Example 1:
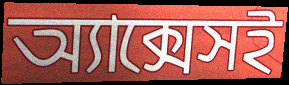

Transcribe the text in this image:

অ্যাক্সেসই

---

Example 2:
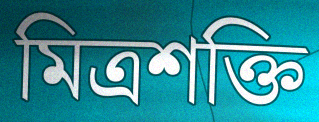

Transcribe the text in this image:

মিত্রশক্তি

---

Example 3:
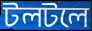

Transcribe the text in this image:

টলটলে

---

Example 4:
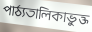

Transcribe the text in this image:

পাঠ্যতালিকাভুক্ত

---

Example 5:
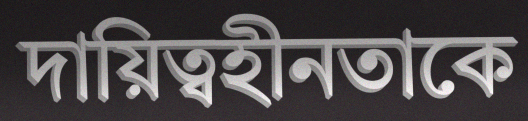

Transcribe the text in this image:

দায়িত্বহীনতাকে